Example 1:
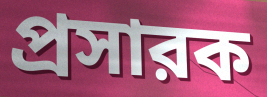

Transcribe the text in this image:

প্রসারক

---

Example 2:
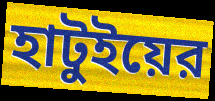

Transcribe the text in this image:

হাটুইয়ের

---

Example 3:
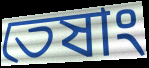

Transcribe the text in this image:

তেষাং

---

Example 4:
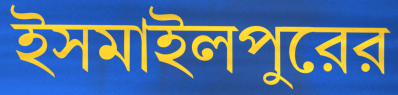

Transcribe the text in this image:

ইসমাইলপুরের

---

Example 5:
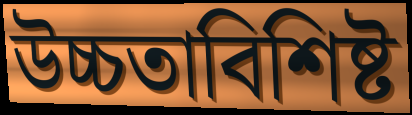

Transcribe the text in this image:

উচ্চতাবিশিষ্ট